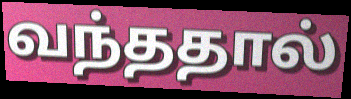
வந்ததால்